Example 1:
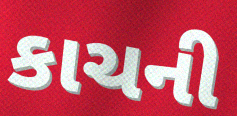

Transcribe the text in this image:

કાચની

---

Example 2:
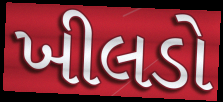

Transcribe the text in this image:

ખીલડો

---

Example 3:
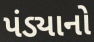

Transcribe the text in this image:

પંડ્યાનો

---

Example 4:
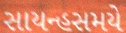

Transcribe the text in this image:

સાયન્હસમયે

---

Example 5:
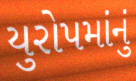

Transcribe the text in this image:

યુરોપમાંનું